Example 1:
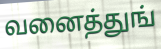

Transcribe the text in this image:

வனைத்துங்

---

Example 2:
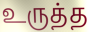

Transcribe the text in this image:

உருத்த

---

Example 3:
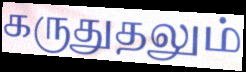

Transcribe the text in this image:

கருதுதலும்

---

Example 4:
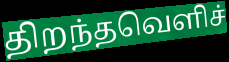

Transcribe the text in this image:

திறந்தவெளிச்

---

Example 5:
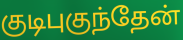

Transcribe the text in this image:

குடிபுகுந்தேன்